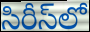
సిరీస్‌లో